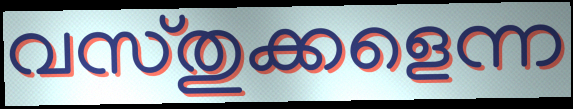
വസ്തുക്കളെന്ന